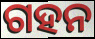
ଗହନ